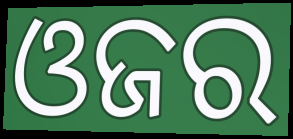
ଓଜର